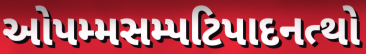
ઓપમ્મસમ્પટિપાદનત્થો